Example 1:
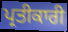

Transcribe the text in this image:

ਪ੍ਰਤੀਕਾਰੀ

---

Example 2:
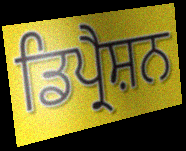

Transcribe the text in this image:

ਡਿਪ੍ਰੈਸ਼ਨ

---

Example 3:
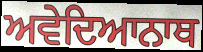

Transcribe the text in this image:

ਅਵੇਦਿਆਨਾਥ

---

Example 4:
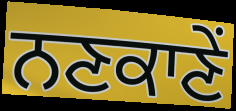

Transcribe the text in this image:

ਨਣਕਾਣੇਂ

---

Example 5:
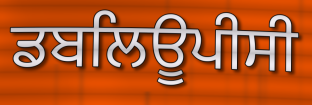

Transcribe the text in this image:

ਡਬਲਿਊਪੀਸੀ